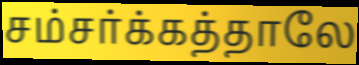
சம்சர்க்கத்தாலே